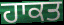
ਹਾਕਤ